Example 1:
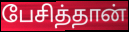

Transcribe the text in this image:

பேசித்தான்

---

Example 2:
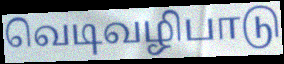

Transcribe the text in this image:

வெடிவழிபாடு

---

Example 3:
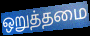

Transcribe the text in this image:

ஒறுத்தமை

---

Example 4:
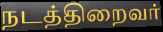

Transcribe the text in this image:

நடத்திறைவர்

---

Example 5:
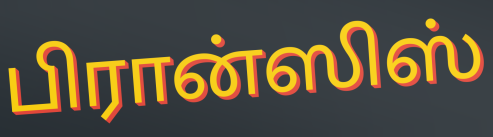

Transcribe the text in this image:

பிரான்ஸிஸ்